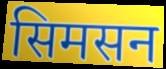
सिमसन